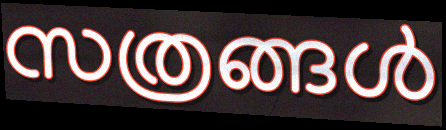
സത്രങ്ങൾ